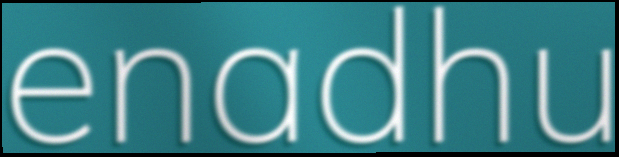
enadhu